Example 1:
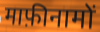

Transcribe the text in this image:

माफ़ीनामों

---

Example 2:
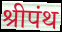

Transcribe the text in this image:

श्रीपंथ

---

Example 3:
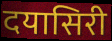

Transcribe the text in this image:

दयासिरी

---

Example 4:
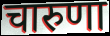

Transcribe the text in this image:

चारुणा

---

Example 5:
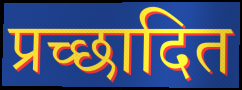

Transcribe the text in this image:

प्रच्छादित